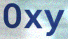
Oxy